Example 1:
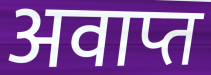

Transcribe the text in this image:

अवाप्त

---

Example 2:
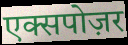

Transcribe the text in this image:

एक्सपोज़र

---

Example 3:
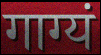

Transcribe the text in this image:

गाग्यं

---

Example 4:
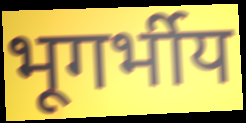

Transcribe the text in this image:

भूगर्भीय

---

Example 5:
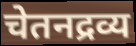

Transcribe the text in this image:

चेतनद्रव्य